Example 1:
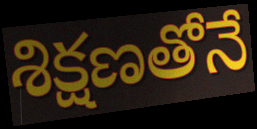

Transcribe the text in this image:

శిక్షణతోనే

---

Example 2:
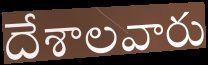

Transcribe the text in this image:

దేశాలవారు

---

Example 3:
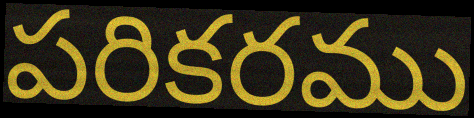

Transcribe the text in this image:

పరికరము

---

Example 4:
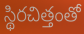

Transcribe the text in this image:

స్థిరచిత్తంతో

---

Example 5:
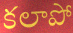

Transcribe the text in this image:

కలాపో